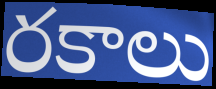
రకాలు